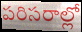
పరిసరాల్లో